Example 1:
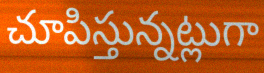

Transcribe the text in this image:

చూపిస్తున్నట్లుగా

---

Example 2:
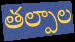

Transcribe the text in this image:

తల్పాల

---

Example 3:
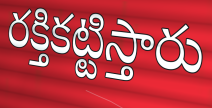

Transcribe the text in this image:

రక్తికట్టిస్తారు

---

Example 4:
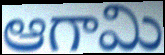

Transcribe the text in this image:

ఆగామి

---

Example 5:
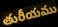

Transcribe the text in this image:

తురీయము